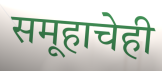
समूहाचेही